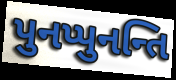
પુનપ્પુનન્તિ